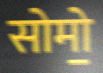
सोमो॒